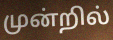
முன்றில்